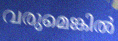
വരുമെങ്കിൽ